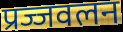
प्रज्‍जवलन